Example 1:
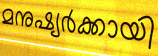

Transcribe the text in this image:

മനുഷ്യർക്കായി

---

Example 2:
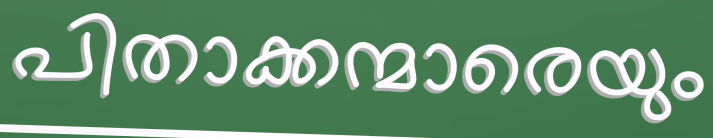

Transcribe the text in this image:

പിതാക്കന്മാരെയും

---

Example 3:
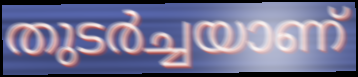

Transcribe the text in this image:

തുടർച്ചയാണ്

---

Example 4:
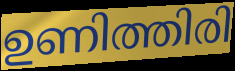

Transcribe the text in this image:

ഉണിത്തിരി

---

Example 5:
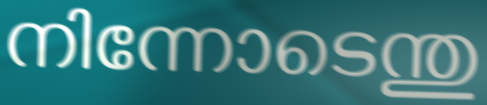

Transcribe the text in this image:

നിന്നോടെന്തു